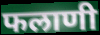
फलाणी